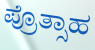
ಪ್ರೊತ್ಸಾಹ